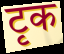
टृक